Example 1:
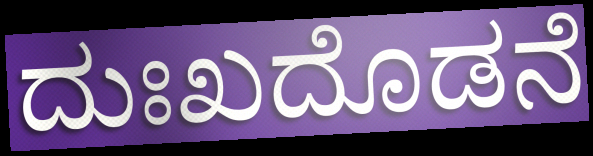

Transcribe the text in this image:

ದುಃಖದೊಡನೆ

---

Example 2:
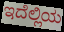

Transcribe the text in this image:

ಇದೆಲ್ಲಿಯ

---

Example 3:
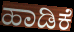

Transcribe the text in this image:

ಹಾಡಿಕೆ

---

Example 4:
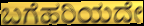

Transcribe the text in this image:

ಬಗೆಹರಿಯದೇ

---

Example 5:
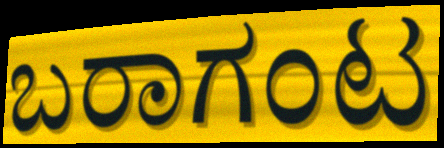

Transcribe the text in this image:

ಬರಾಗಂಟ